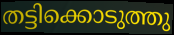
തട്ടിക്കൊടുത്തു